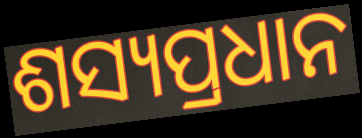
ଶସ୍ୟପ୍ରଧାନ